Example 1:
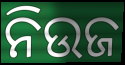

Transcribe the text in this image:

ନିଉଜ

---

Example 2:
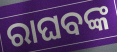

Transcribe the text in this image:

ରାଘବଙ୍କ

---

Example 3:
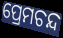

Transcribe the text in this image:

ପ୍ରେମଚନ୍ଦ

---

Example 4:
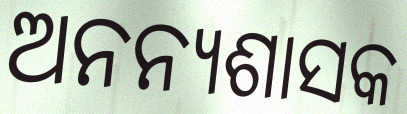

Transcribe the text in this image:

ଅନନ୍ୟଶାସକ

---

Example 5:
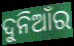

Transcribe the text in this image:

ଦୁନିଆଁର